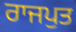
ਰਾਜਪੁਤ